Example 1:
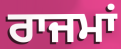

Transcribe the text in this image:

ਰਾਜਮਾਂ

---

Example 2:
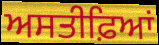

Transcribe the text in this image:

ਅਸਤੀਫ਼ਿਆਂ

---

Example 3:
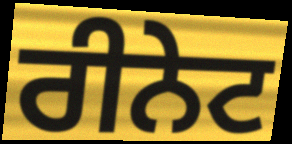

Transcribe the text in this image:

ਰੀਨੇਟ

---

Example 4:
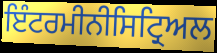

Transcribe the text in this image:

ਇੰਟਰਮੀਨੀਸਿਟ੍ਰਿਅਲ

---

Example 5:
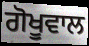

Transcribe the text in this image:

ਗੋਖੂਵਾਲ